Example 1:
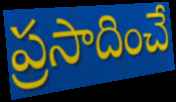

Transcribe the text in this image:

ప్రసాదించే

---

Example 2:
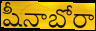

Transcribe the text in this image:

షీనాబోరా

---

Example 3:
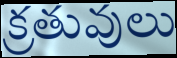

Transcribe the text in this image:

క్రతువులు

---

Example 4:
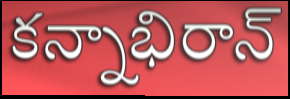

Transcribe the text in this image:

కన్నాభిరాన్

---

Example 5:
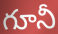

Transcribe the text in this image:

గూనీ